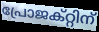
പ്രോജക്റ്റിന്